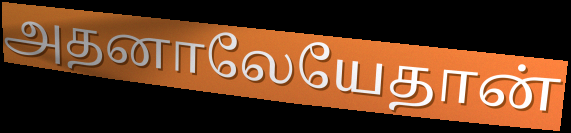
அதனாலேயேதான்